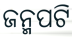
ଜନ୍ମପଟି